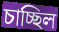
চাচ্ছিল